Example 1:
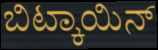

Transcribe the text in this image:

ಬಿಟ್ಕಾಯಿನ್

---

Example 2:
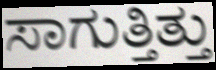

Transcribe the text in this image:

ಸಾಗುತ್ತಿತ್ತು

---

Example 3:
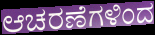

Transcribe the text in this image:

ಆಚರಣೆಗಳಿಂದ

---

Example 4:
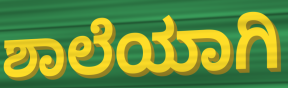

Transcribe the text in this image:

ಶಾಲೆಯಾಗಿ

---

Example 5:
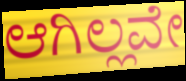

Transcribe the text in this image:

ಆಗಿಲ್ಲವೇ